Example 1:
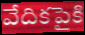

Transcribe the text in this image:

వేదికపైకి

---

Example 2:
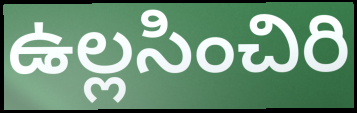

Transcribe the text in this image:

ఉల్లసించిరి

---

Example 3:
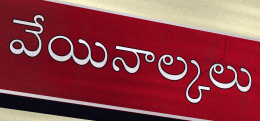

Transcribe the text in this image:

వేయినాల్కలు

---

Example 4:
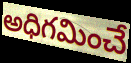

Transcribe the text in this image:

అధిగమించే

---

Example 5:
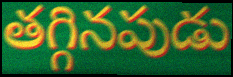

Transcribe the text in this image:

తగ్గినపుడు